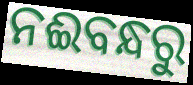
ନଈବନ୍ଧରୁ